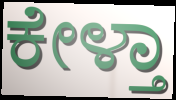
ಕೇಳ್ತಾ